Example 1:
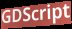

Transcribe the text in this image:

GDScript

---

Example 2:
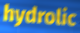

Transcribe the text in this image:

hydrolic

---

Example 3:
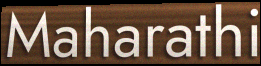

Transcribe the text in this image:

Maharathi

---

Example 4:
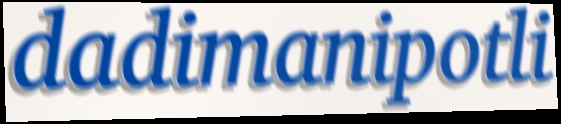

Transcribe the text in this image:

dadimanipotli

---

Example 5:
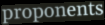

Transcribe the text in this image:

proponents